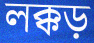
লক্কড়